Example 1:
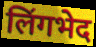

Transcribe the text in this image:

लिंगभेद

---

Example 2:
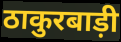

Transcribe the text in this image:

ठाकुरबाड़ी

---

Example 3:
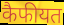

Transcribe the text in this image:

कैफीयत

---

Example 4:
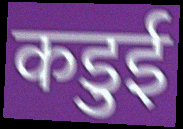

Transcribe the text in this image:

कडुई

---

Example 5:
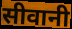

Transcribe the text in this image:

सीवानी